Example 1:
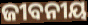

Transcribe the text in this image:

ଜୀବନୀୟ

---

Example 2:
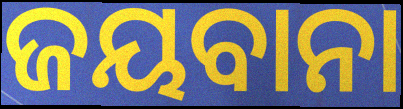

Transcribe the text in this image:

ଜୟବାନା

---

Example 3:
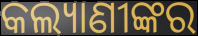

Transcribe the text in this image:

କଲ୍ୟାଣୀଙ୍କର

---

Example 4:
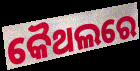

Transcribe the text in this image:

କୈଥଲରେ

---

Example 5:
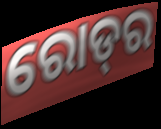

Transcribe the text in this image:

ରୋଡ୍‌ର